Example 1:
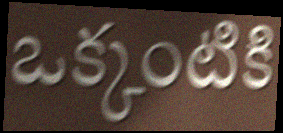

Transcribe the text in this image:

ఒక్కంటికి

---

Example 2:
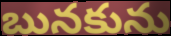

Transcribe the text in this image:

బునకును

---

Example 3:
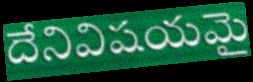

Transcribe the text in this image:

దేనివిషయమై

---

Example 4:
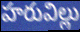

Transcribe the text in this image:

హరువిల్లు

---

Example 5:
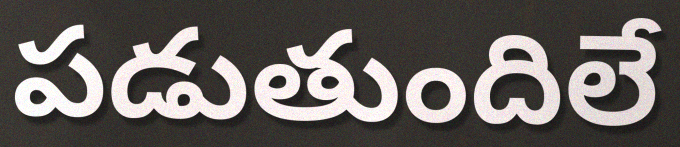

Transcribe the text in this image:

పడుతుందిలే